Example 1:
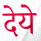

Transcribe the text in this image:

देये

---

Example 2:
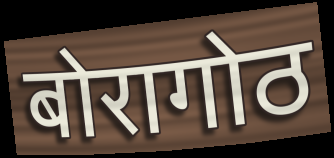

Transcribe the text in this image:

बोरागोठ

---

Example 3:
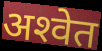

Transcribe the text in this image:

अश्‍वेत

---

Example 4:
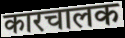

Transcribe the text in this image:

कारचालक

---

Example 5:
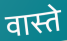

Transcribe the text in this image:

वास्ते